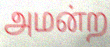
அமன்ற